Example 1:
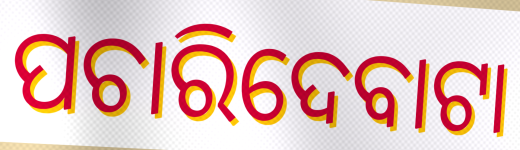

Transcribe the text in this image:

ପଚାରିଦେବାଟା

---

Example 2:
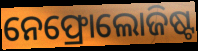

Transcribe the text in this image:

ନେଫ୍ରୋଲୋଜିଷ୍ଟ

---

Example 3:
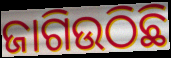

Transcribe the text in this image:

ଜାଗିଉଠିଛି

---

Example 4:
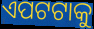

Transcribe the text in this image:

ଏପଟଟାକୁ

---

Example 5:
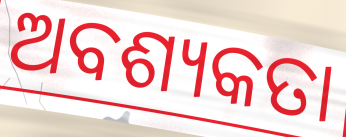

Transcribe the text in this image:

ଅବଶ୍ୟକତା